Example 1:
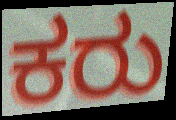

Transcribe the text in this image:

ಕರು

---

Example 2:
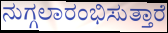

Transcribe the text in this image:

ನುಗ್ಗಲಾರಂಭಿಸುತ್ತಾರೆ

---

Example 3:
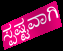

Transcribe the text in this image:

ಸ್ಪಷ್ಟವಾಗಿ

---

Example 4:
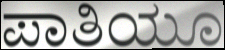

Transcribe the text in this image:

ಪಾತಿಯೂ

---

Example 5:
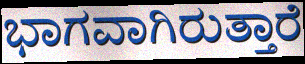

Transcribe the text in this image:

ಭಾಗವಾಗಿರುತ್ತಾರೆ